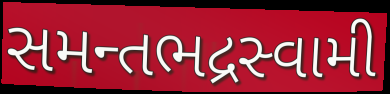
સમન્તભદ્રસ્વામી